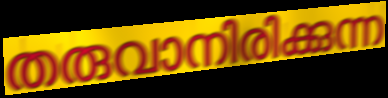
തരുവാനിരിക്കുന്ന